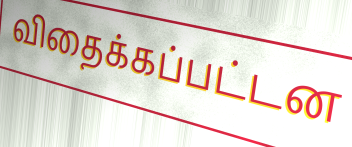
விதைக்கப்பட்டன